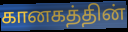
கானகத்தின்